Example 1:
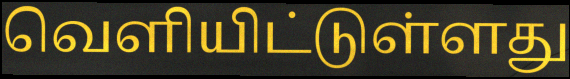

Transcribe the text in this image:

வெளியிட்டுள்ளது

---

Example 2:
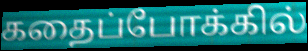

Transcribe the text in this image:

கதைப்போக்கில்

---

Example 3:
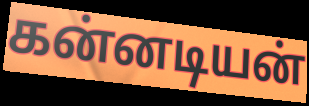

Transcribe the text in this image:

கன்னடியன்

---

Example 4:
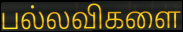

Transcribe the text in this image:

பல்லவிகளை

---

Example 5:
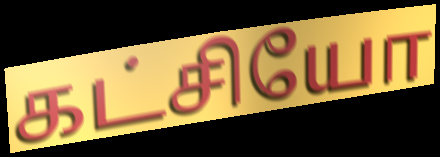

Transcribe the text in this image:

கட்சியோ